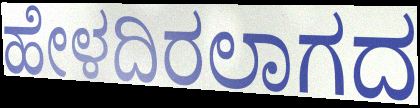
ಹೇಳದಿರಲಾಗದ